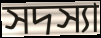
সদস্যা